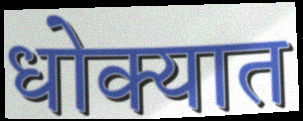
धोक्यात